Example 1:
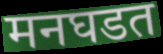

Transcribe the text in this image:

मनघडत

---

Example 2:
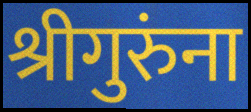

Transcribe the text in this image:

श्रीगुरुंना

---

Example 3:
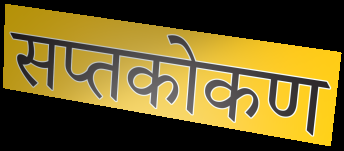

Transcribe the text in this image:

सप्तकोकण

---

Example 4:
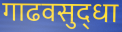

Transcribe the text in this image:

गाढवसुद्धा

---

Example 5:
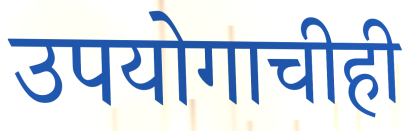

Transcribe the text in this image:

उपयोगाचीही